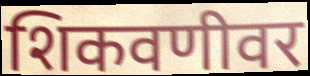
शिकवणीवर